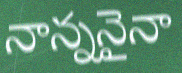
నాన్ననైనా